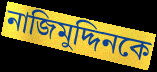
নাজিমুদ্দিনকে